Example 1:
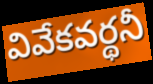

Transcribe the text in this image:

వివేకవర్థనీ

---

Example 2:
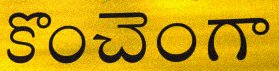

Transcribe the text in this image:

కొంచెంగా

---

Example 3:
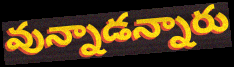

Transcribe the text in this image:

వున్నాడన్నారు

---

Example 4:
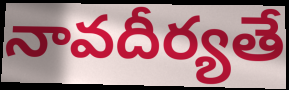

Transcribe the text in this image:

నావదీర్యతే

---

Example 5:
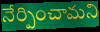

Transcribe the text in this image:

నేర్పించామని